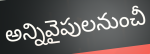
అన్నివైపులనుంచీ